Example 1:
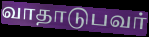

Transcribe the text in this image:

வாதாடுபவர்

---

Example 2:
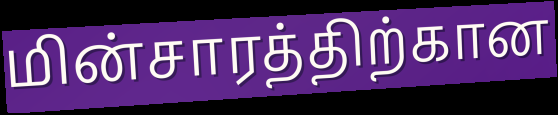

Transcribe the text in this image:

மின்சாரத்திற்கான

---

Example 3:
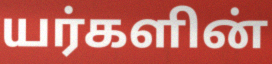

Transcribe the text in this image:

யர்களின்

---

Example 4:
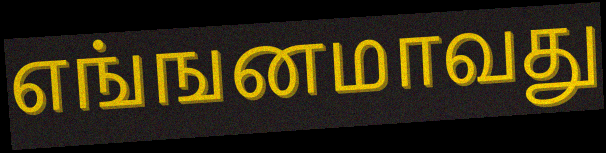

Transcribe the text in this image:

எங்ஙனமாவது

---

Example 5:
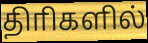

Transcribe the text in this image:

திரிகளில்